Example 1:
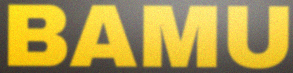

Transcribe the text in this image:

BAMU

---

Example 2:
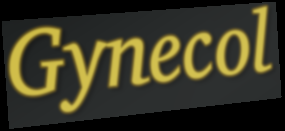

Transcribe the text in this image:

Gynecol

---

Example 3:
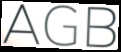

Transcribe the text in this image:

AGB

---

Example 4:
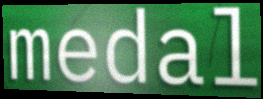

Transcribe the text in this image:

medal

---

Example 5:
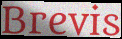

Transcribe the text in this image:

Brevis